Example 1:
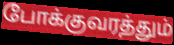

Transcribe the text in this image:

போக்குவரத்தும்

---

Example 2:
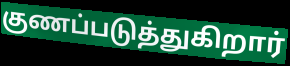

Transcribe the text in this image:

குணப்படுத்துகிறார்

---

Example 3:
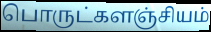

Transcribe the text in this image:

பொருட்களஞ்சியம்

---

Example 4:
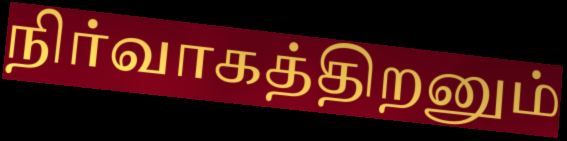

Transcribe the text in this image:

நிர்வாகத்திறனும்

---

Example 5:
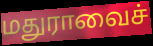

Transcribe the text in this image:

மதுராவைச்